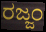
ರಜ್ಜಂ